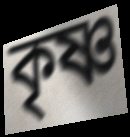
কৃষ্ণ